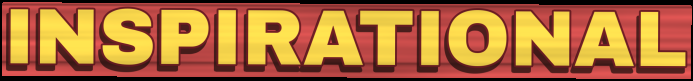
INSPIRATIONAL